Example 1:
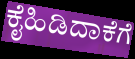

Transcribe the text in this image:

ಕೈಹಿಡಿದಾಕೆಗೆ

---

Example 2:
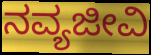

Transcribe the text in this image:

ನವ್ಯಜೀವಿ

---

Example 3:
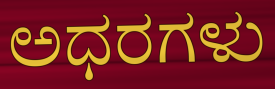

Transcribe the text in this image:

ಅಧರಗಳು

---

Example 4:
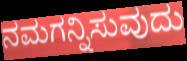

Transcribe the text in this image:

ನಮಗನ್ನಿಸುವುದು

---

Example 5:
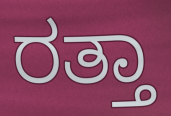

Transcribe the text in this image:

ರತ್ತಾ